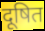
दूषित